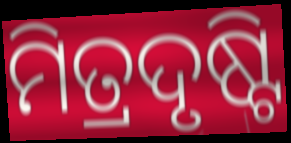
ମିତ୍ରଦୃଷ୍ଟି